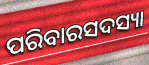
ପରିବାରସଦସ୍ୟା